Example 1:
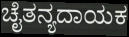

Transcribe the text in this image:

ಚೈತನ್ಯದಾಯಕ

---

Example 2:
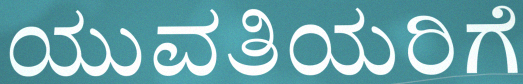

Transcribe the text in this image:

ಯುವತಿಯರಿಗೆ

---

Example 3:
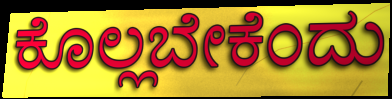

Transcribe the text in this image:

ಕೊಲ್ಲಬೇಕೆಂದು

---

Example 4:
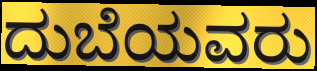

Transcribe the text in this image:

ದುಬೆಯವರು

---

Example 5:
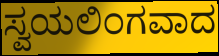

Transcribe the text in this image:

ಸ್ವಯಲಿಂಗವಾದ